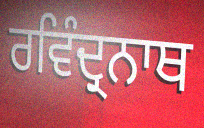
ਰਵਿੰਦ੍ਰਨਾਥ